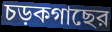
চড়কগাছের